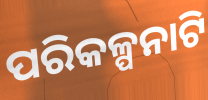
ପରିକଳ୍ପନାଟି